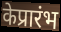
केप्रारंभ